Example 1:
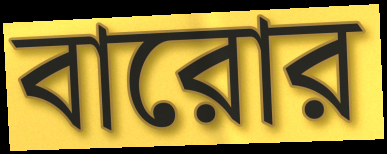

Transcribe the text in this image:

বারোর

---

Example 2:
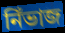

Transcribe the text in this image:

নিঁভাজ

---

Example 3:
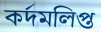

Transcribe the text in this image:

কর্দমলিপ্ত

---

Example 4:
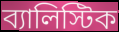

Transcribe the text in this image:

ব্যালিস্টিক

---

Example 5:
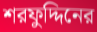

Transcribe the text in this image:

শরফুদ্দিনের